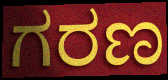
ಗರಣ